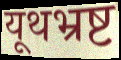
यूथभ्रष्ट